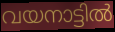
വയനാട്ടിൽ